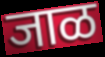
जाळ